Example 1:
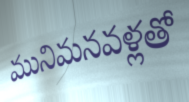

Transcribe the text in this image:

మునిమనవళ్లతో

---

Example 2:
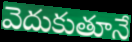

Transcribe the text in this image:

వెదుకుతూనే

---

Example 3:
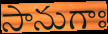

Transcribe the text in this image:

సానుగాః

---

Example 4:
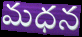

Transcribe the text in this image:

మధన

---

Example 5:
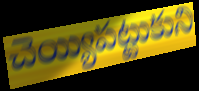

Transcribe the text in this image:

చెయ్యిపట్టుకుని